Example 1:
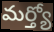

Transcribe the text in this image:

మర్త్యో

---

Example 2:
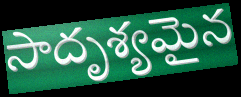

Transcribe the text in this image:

సాదృశ్యమైన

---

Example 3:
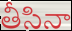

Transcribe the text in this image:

తీసినా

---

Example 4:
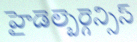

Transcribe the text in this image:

హైడెల్బెర్గెన్సిస్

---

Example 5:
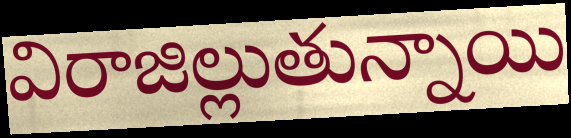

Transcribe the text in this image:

విరాజిల్లుతున్నాయి